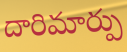
దారిమార్పు